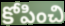
కోపించి